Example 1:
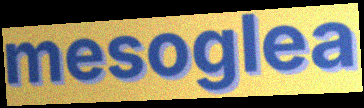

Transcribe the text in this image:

mesoglea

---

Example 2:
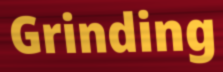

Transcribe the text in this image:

Grinding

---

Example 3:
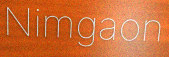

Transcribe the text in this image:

Nimgaon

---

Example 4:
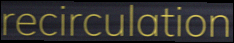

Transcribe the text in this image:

recirculation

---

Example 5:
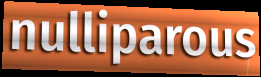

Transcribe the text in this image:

nulliparous